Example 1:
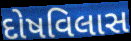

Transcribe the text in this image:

દોષવિલાસ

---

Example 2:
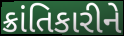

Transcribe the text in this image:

ક્રાંતિકારીને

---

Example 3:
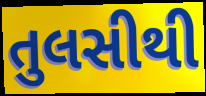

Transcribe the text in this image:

તુલસીથી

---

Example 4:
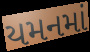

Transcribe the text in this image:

યમનમાં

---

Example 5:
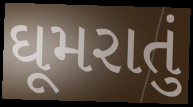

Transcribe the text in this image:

ઘૂમરાતું